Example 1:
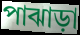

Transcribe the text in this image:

পাঝাড়া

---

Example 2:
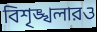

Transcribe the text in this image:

বিশৃঙ্খলারও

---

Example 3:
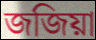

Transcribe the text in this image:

জজিয়া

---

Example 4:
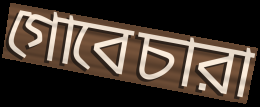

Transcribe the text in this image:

গোবেচারা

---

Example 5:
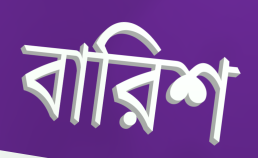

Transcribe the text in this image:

বারিশ